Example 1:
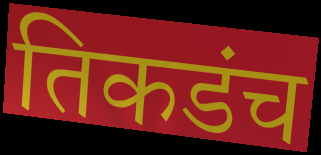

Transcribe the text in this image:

तिकडंच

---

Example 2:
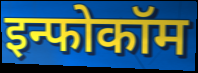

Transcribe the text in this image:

इन्फोकॉम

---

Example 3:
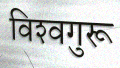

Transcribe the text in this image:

विश्वगुरू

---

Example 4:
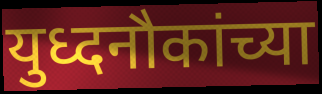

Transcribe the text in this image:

युध्दनौकांच्या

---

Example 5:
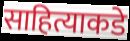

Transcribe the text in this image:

साहित्याकडे